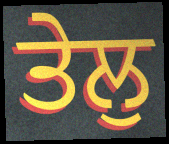
ਤੇਲੁ